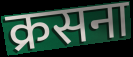
क्रसना